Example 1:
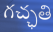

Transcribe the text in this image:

గచ్ఛతి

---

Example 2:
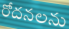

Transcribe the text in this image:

రోదనలను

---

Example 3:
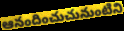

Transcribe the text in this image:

ఆనందించుచునుంటిని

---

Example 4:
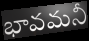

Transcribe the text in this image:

భావమనీ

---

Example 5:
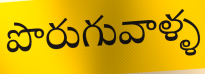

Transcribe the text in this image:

పొరుగువాళ్ళ